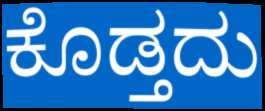
ಕೊಡ್ತದು